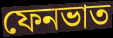
ফেনভাত